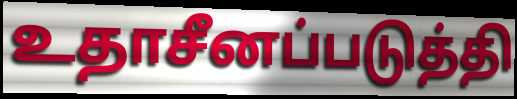
உதாசீனப்படுத்தி